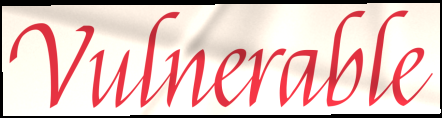
Vulnerable